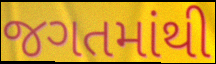
જગતમાંથી